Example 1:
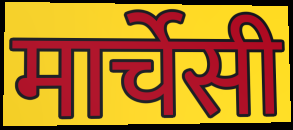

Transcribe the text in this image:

मार्चेसी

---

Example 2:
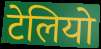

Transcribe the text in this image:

टेलियो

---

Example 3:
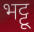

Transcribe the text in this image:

भट्टू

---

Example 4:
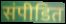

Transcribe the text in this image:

संपीडित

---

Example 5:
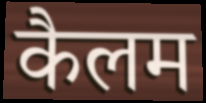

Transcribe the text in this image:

कैलम